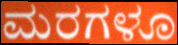
ಮರಗಳೂ